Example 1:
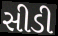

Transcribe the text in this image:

સીડી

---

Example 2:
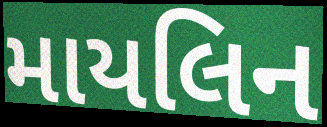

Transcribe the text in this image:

માયલિન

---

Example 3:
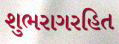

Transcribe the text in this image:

શુભરાગરહિત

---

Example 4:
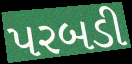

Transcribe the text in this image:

પરબડી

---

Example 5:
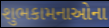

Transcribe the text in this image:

શુભકામનાઓના